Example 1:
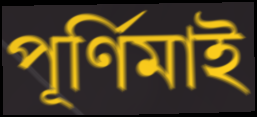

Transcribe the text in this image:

পূৰ্ণিমাই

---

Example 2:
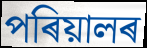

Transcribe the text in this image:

পৰিয়ালৰ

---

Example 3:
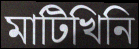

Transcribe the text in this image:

মাটিখিনি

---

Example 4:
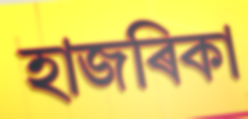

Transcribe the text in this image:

হাজৰিকা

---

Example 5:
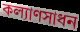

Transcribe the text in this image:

কল্যাণসাধন